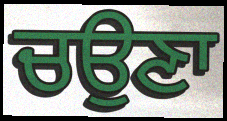
ਚਉਣਾ